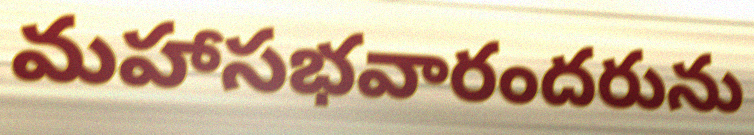
మహాసభవారందరును